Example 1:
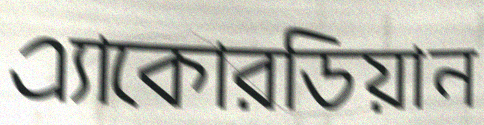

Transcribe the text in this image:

এ্যাকোরডিয়ান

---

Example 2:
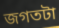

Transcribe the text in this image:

জগতটা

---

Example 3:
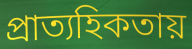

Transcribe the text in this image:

প্রাত্যহিকতায়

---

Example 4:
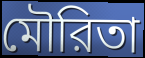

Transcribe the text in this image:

মৌরিতা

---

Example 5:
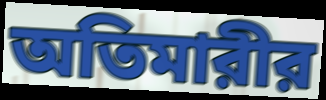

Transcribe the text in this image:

অতিমারীর